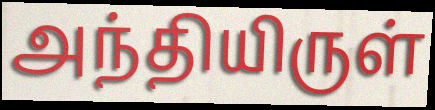
அந்தியிருள்